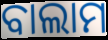
ବାଲାମ